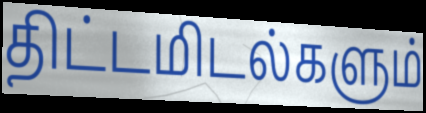
திட்டமிடல்களும்